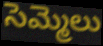
సెమ్మెలు